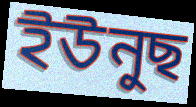
ইউনুছ